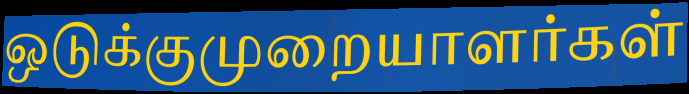
ஒடுக்குமுறையாளர்கள்